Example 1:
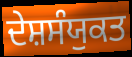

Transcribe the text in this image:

ਦੇਸ਼ਸੰਯੁਕਤ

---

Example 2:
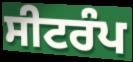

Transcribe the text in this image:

ਸੀਟਰੰਪ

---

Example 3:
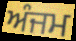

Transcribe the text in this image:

ਅੰਜਮ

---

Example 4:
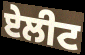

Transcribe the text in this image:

ਏਲੀਟ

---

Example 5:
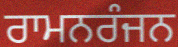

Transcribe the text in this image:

ਰਾਮਨਰੰਜਨ